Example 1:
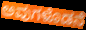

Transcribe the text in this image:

ಅವುಗಳೊಡನೆ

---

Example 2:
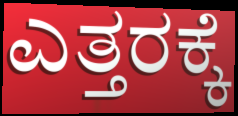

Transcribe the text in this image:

ಎತ್ತರಕ್ಕೆ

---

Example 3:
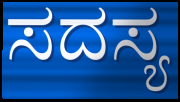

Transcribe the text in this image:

ಸದಸ್ಯ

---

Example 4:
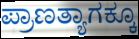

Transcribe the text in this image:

ಪ್ರಾಣತ್ಯಾಗಕ್ಕೂ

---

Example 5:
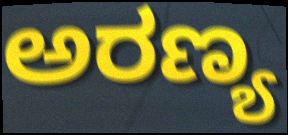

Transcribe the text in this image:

ಅರಣ್ಯ